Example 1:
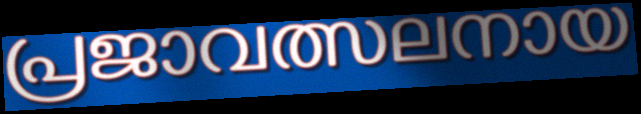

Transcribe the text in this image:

പ്രജാവത്സലനായ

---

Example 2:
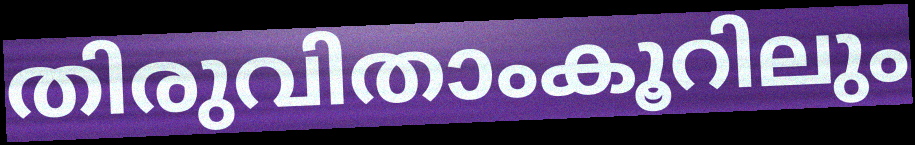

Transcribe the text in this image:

തിരുവിതാംകൂറിലും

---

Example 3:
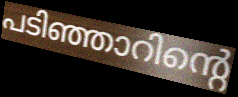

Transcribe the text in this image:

പടിഞ്ഞാറിന്റെ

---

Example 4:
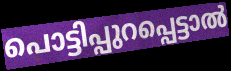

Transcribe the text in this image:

പൊട്ടിപ്പുറപ്പെട്ടാൽ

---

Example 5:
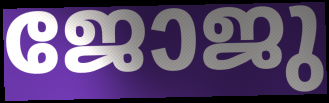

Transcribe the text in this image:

ജോജു